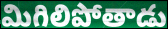
మిగిలిపోతాడు